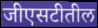
जीएसटीतील